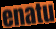
enatu